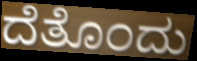
ದೆತೊಂದು